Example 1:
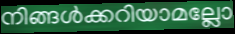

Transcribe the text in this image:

നിങ്ങൾക്കറിയാമല്ലോ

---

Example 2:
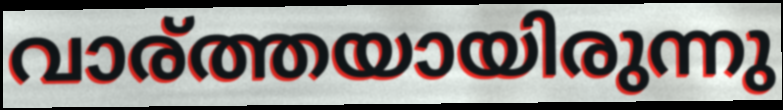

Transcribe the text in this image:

വാര്ത്തയായിരുന്നു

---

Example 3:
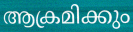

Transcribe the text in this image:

ആക്രമിക്കും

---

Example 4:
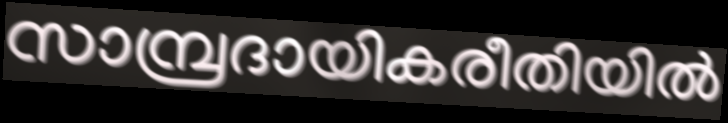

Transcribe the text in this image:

സാമ്പ്രദായികരീതിയിൽ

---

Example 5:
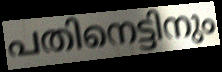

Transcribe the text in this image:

പതിനെട്ടിനും